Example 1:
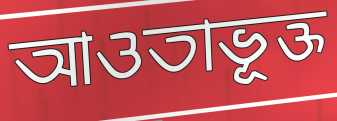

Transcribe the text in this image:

আওতাভূক্ত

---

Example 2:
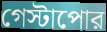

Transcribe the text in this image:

গেস্টাপোর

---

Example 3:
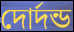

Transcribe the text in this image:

দোর্দন্ড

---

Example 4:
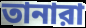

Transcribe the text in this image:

তানারা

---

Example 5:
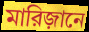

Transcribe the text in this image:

মারিজ়ানে